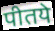
पीतये